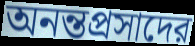
অনন্তপ্রসাদের